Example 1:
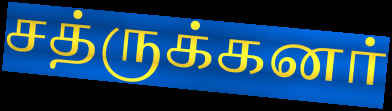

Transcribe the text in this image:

சத்ருக்கனர்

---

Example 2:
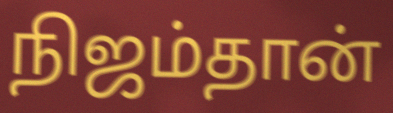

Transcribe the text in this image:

நிஜம்தான்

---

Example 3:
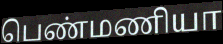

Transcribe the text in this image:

பெண்மணியா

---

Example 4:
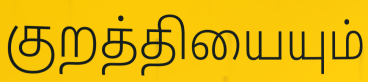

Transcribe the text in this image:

குறத்தியையும்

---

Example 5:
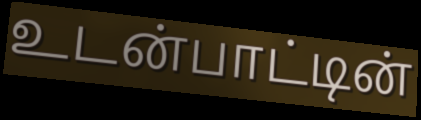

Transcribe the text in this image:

உடன்பாட்டின்